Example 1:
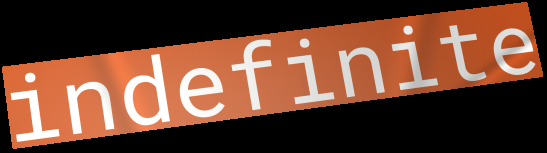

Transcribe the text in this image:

indefinite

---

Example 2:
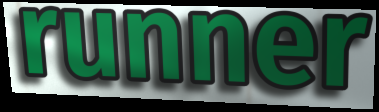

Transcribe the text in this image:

runner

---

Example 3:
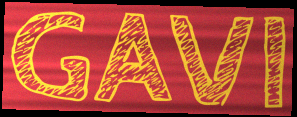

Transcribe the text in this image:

GAVI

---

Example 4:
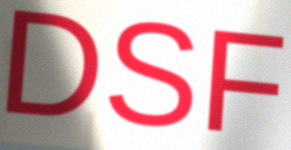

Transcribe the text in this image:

DSF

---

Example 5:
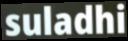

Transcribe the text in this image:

suladhi